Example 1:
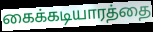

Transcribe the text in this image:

கைக்கடியாரத்தை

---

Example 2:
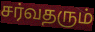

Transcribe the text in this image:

சர்வதரும்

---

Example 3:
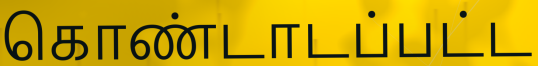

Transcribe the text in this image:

கொண்டாடப்பட்ட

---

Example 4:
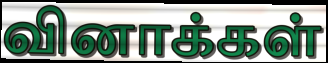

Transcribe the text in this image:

வினாக்கள்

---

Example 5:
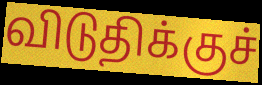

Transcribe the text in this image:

விடுதிக்குச்